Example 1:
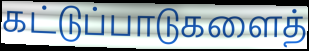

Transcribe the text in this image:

கட்டுப்பாடுகளைத்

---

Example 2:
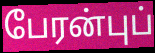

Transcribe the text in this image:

பேரன்புப்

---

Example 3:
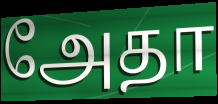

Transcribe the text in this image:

அேதா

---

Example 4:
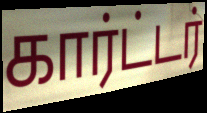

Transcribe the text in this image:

கார்ட்டர்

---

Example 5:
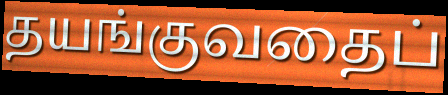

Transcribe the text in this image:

தயங்குவதைப்